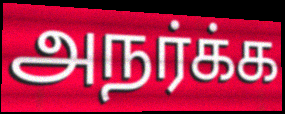
அநர்க்க